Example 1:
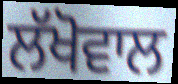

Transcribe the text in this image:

ਲੱਖੋਵਾਲ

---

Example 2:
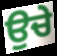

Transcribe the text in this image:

ਉਚੇ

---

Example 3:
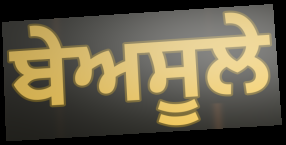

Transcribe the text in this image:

ਬੇਅਸੂਲੇ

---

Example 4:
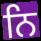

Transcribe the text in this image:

ਨਿ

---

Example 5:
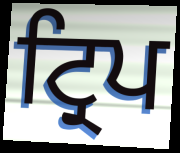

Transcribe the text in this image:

ਟ੍ਰਿਪ